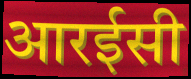
आरईसी